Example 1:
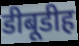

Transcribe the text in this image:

डीबूडीह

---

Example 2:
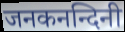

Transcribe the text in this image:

जनकनन्दिनी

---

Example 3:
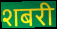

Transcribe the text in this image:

शबरी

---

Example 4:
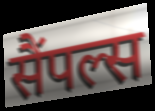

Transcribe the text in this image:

सैंपल्स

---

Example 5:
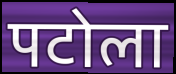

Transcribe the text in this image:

पटोला